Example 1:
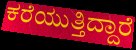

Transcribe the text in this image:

ಕರೆಯುತ್ತಿದ್ದಾರೆ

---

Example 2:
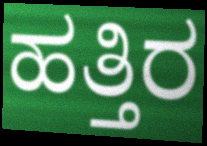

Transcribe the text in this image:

ಹತ್ತಿರ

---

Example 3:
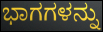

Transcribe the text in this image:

ಭಾಗಗಳನ್ನು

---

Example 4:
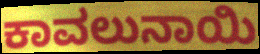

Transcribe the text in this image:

ಕಾವಲುನಾಯಿ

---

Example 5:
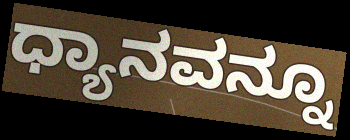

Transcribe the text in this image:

ಧ್ಯಾನವನ್ನೂ